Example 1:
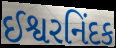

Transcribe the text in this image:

ઈશ્વરનિંદક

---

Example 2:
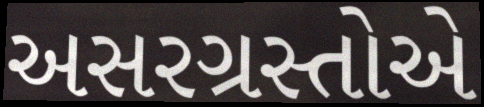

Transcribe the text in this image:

અસરગ્રસ્તોએ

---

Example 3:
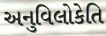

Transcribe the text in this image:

અનુવિલોકેતિ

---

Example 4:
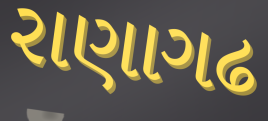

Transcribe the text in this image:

રાણાગઢ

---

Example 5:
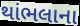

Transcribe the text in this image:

થાંભલાના